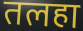
तलहा